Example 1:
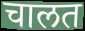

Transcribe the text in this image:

चालत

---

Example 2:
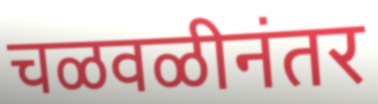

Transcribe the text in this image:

चळवळीनंतर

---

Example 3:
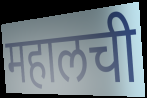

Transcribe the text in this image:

महालची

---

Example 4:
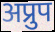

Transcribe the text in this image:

अप्रुप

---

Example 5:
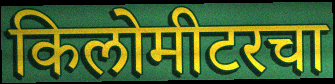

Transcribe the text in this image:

किलोमीटरचा